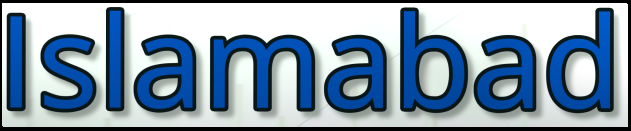
Islamabad